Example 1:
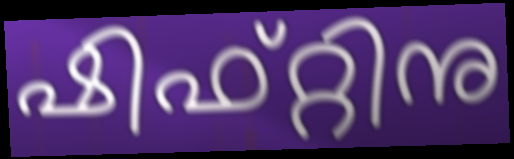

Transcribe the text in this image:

ഷിഫ്റ്റിനു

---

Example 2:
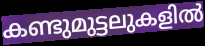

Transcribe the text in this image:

കണ്ടുമുട്ടലുകളിൽ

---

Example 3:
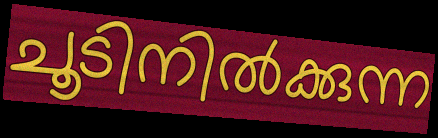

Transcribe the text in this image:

ചൂടിനിൽക്കുന്ന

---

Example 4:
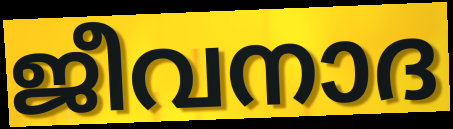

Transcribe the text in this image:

ജീവനാദ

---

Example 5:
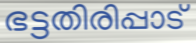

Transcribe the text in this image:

ഭട്ടതിരിപ്പാട്